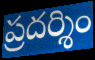
ప్రదర్శిం